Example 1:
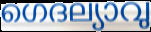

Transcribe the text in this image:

ഗെദല്യാവു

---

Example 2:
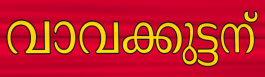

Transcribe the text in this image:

വാവക്കുട്ടന്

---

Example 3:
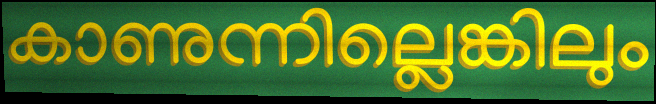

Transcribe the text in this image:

കാണുന്നില്ലെങ്കിലും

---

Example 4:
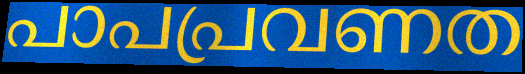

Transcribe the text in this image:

പാപപ്രവണത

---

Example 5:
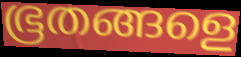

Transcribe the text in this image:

ഭൂതങ്ങളെ